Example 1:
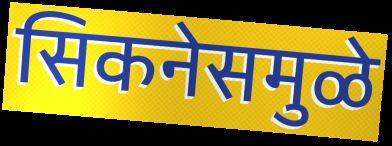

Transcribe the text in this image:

सिकनेसमुळे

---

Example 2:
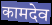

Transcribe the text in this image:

कामदेव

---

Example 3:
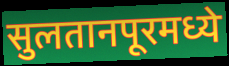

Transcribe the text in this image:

सुलतानपूरमध्ये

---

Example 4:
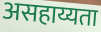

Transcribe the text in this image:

असहाय्यता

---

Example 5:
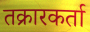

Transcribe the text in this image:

तक्रारकर्ता